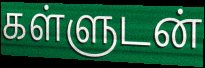
கள்ளுடன்